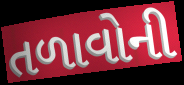
તળાવોની